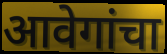
आवेगांचा